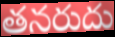
తనరుదు